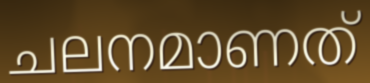
ചലനമാണത്